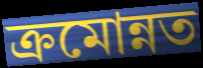
ক্রমোন্নত